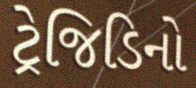
ટ્રેજિડિનો